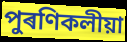
পুৰণিকলীয়া